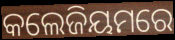
କଲେଜିୟମରେ